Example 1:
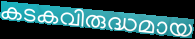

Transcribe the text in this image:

കടകവിരുദ്ധമായ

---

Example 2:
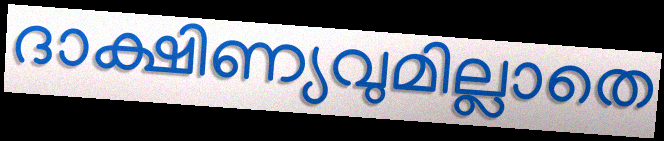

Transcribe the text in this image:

ദാക്ഷിണ്യവുമില്ലാതെ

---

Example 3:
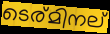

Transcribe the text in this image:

ടെര്മിനല്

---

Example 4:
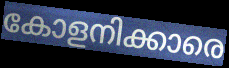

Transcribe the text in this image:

കോളനിക്കാരെ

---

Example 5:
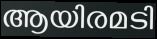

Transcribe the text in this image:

ആയിരമടി